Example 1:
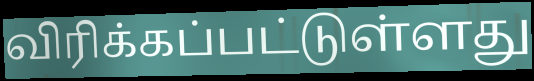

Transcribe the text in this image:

விரிக்கப்பட்டுள்ளது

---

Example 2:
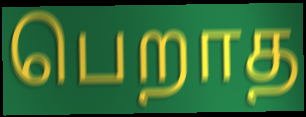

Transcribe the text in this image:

பெறாத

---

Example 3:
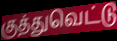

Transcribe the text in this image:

குத்துவெட்டு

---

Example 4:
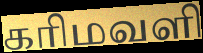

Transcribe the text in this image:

கரிமவளி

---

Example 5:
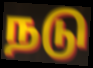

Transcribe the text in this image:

நடு